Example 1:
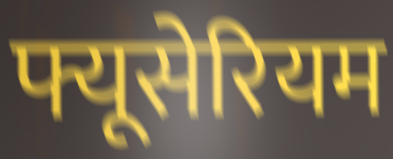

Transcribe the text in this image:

फ्यूसेरियम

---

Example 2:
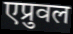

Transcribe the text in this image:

एप्रुवल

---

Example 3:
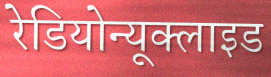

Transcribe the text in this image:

रेडियोन्यूक्लाइड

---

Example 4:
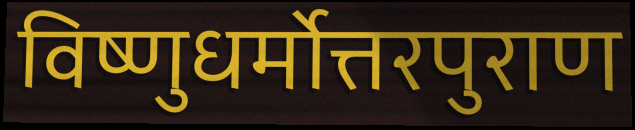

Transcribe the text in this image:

विष्णुधर्मोत्तरपुराण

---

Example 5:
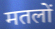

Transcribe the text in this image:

मतलों